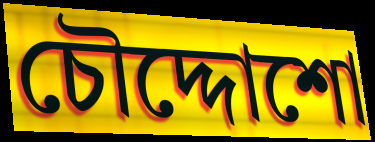
চৌদ্দোশো